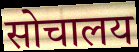
सोचालय